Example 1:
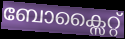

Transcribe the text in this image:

ബോക്സൈറ്റ്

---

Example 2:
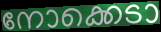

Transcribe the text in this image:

നോക്കെടാ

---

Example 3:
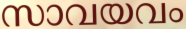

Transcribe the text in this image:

സാവയവം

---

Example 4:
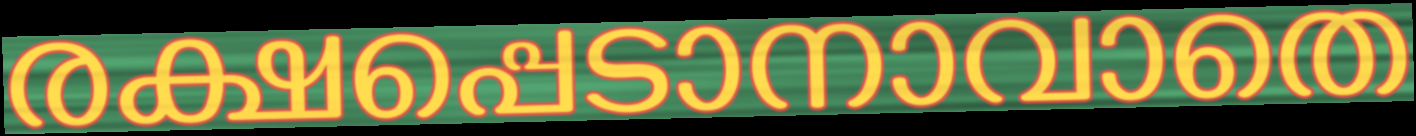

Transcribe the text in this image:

രക്ഷപ്പെടാനാവാതെ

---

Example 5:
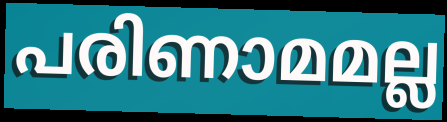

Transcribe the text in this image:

പരിണാമമല്ല